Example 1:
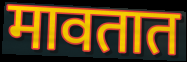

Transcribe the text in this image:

मावतात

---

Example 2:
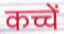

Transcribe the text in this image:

कच्चें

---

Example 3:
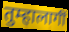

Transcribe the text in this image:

तुम्हालागीं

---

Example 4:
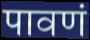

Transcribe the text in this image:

पावणं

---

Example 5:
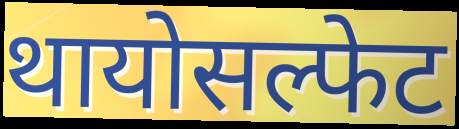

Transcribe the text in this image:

थायोसल्फेट